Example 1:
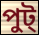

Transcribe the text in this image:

পুট্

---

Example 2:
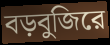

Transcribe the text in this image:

বড়বুজিরে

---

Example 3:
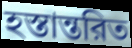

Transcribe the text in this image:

হস্তান্তরিত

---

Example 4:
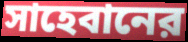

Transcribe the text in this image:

সাহেবানের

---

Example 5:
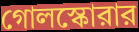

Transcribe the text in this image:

গোলস্কোরার